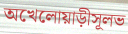
অখেলোয়াড়ীসূলভ